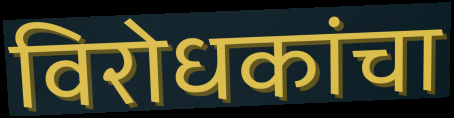
विरोधकांचा